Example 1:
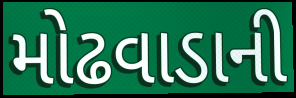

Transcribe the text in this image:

મોઢવાડાની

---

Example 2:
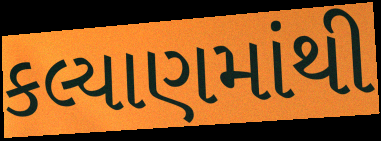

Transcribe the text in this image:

કલ્યાણમાંથી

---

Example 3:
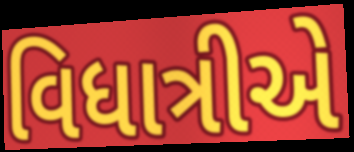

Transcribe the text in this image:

વિધાત્રીએ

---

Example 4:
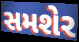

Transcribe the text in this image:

સમશેર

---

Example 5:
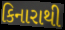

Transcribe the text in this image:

કિનારાથી